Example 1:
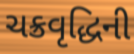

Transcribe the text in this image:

ચક્રવૃદ્ધિની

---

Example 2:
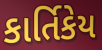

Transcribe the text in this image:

કાર્તિકેય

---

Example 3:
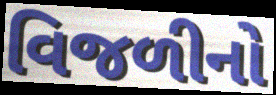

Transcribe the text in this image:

વિજળીનો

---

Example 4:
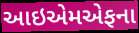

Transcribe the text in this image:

આઇએમએફના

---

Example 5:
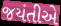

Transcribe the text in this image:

જયંતીએ